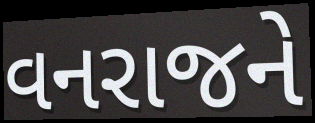
વનરાજને